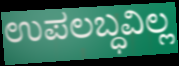
ಉಪಲಬ್ಧವಿಲ್ಲ